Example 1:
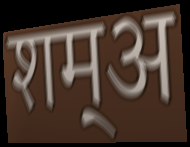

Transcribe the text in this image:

शम्अ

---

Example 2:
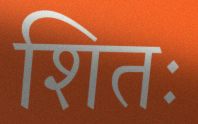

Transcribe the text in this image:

शितः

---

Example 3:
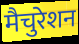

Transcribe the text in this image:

मैचुरेशन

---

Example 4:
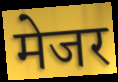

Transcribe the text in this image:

मेजर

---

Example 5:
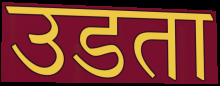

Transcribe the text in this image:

उडता